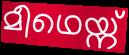
മീഥെയ്ന്